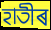
হাতীৰ